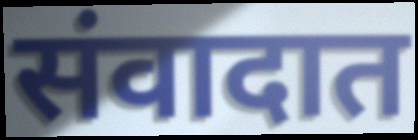
संवादात